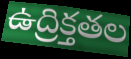
ఉద్రిక్తతల